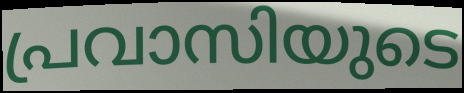
പ്രവാസിയുടെ